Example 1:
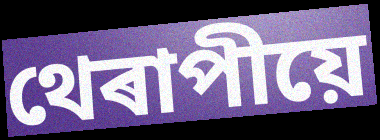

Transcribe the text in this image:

থেৰাপীয়ে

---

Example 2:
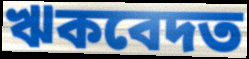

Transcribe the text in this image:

ঋকবেদত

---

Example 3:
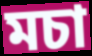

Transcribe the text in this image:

মচা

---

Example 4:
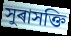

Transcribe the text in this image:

সুৰাসক্তি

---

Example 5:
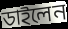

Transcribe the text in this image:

ডাইলেন